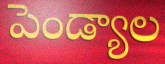
పెండ్యాల